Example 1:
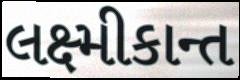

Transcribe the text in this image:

લક્ષ્મીકાન્ત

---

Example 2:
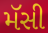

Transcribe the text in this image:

મૅસી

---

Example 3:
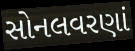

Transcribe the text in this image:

સોનલવરણાં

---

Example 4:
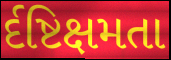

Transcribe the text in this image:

ર્દષ્ટિક્ષમતા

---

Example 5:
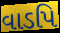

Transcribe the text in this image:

વાઽપિ